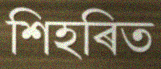
শিহৰিত